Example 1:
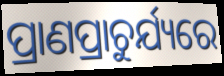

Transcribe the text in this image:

ପ୍ରାଣପ୍ରାଚୁର୍ଯ୍ୟରେ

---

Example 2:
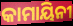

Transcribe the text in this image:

କାମାୟିନୀ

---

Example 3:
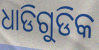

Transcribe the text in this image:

ଧାଡିଗୁଡିକ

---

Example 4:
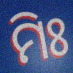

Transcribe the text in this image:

ମିଃ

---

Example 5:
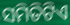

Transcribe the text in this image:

ସମିତିଟିଏ